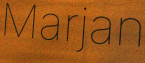
Marjan